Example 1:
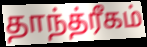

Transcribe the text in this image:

தாந்த்ரீகம்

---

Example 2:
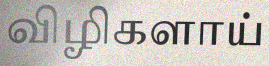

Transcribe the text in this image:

விழிகளாய்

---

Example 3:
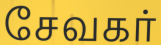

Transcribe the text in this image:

சேவகர்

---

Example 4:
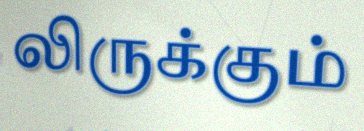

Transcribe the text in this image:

லிருக்கும்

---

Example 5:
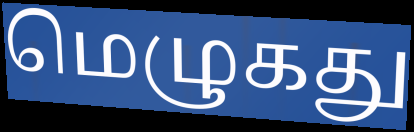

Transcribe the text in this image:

மெழுகது